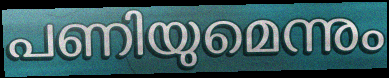
പണിയുമെന്നും